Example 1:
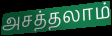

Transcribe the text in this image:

அசத்தலாம்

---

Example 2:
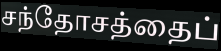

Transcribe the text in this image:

சந்தோசத்தைப்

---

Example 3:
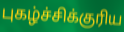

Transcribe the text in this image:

புகழ்ச்சிக்குரிய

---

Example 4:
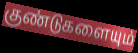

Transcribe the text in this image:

குண்டுகளையும்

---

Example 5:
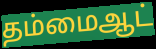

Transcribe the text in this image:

தம்மைஆட்